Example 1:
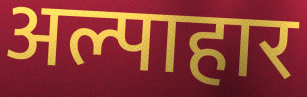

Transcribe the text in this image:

अल्पाहार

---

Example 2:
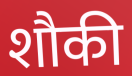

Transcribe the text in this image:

शौकी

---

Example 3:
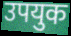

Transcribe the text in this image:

उपयुक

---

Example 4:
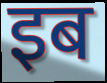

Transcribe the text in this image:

इब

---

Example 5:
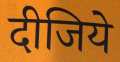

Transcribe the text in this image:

दीजिये